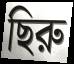
ছিরু